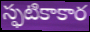
స్ఫటికాకార